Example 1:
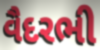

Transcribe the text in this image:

વૈદરભી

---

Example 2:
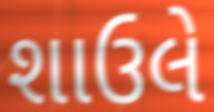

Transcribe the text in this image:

શાઉલે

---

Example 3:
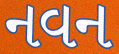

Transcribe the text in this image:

નવન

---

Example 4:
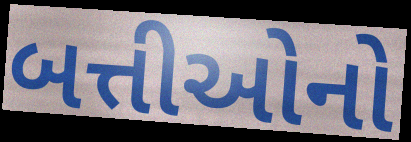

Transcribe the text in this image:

બત્તીઓનો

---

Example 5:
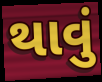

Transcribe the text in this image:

થાવું